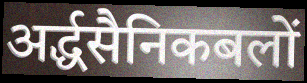
अर्द्धसैनिकबलों